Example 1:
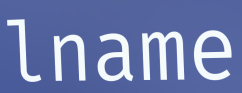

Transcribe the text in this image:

lname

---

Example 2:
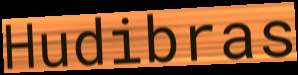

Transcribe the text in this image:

Hudibras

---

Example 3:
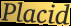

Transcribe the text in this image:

Placid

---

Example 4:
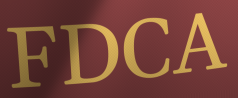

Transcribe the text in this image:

FDCA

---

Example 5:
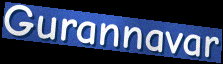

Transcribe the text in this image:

Gurannavar